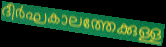
ദീർഘകാലത്തേക്കുള്ള